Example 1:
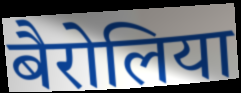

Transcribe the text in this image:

बैरोलिया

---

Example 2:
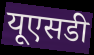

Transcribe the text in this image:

यूएसडी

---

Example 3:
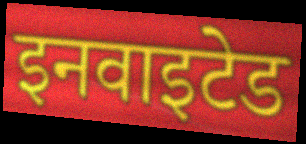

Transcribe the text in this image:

इनवाइटेड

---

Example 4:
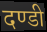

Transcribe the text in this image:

दण्डी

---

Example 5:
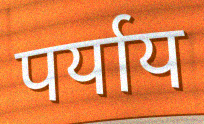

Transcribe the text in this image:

पर्याय